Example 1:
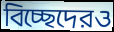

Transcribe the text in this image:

বিচ্ছেদেরও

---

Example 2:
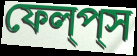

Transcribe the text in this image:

ফেল্‌প্‌স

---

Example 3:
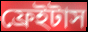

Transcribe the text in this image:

ফ্রেইটাস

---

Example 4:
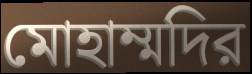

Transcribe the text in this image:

মোহাম্মদির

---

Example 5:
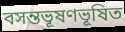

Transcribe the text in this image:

বসন্তভূষণভূষিত